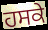
ਹਸਕੇ